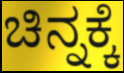
ಚಿನ್ನಕ್ಕೆ